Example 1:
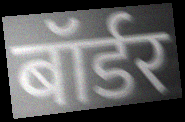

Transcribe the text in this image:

बॉर्डर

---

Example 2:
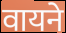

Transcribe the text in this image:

वायने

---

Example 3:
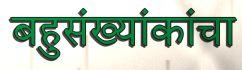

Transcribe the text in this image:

बहुसंख्यांकांचा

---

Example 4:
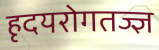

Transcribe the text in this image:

हृदयरोगतज्ज्ञ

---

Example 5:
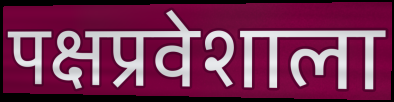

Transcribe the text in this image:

पक्षप्रवेशाला